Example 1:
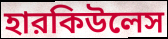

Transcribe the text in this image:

হারকিউলেস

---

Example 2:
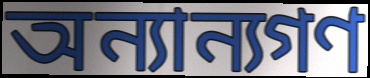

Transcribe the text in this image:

অন্যান্যগণ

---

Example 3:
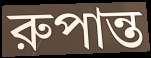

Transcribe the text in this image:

রুপান্ত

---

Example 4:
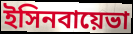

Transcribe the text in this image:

ইসিনবায়েভা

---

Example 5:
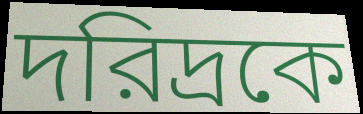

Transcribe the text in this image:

দরিদ্রকে